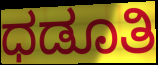
ಧಡೂತಿ